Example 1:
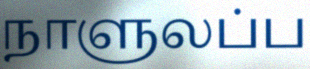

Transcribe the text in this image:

நாளுலப்ப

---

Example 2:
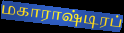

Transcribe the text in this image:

மகாராஷ்டிரப்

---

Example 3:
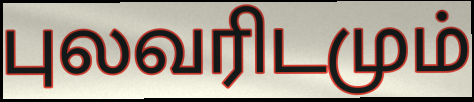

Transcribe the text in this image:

புலவரிடமும்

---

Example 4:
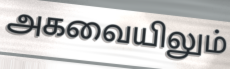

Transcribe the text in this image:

அகவையிலும்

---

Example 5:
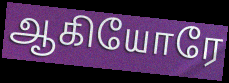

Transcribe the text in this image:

ஆகியோரே